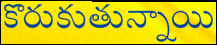
కొరుకుతున్నాయి